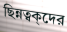
ছিন্নত্বক্দের